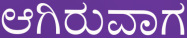
ಆಗಿರುವಾಗ